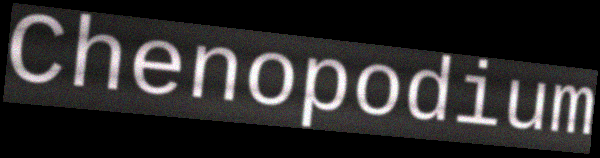
Chenopodium